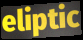
eliptic